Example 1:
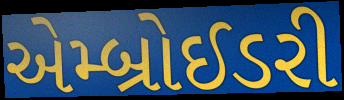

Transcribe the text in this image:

એમ્બ્રોઈડરી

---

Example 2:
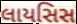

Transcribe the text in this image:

લાયસિસ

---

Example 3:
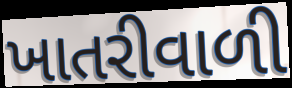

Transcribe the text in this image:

ખાતરીવાળી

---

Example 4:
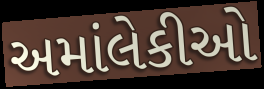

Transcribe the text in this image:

અમાંલેકીઓ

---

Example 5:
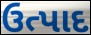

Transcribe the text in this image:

ઉત્પાદ